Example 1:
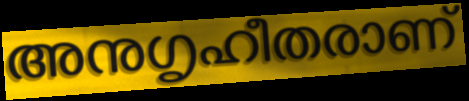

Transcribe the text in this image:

അനുഗൃഹീതരാണ്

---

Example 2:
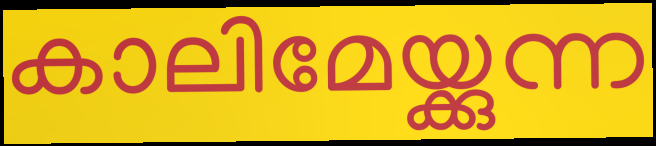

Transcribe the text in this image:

കാലിമേയ്ക്കുന്ന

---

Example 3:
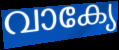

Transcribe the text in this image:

വാക്യേ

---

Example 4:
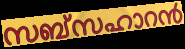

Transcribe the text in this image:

സബ്സഹാറൻ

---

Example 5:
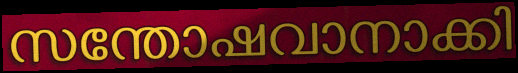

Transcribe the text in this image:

സന്തോഷവാനാക്കി